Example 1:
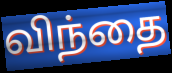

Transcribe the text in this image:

விந்தை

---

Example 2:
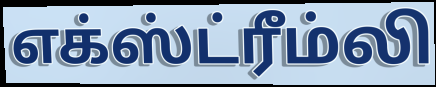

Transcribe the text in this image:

எக்ஸ்ட்ரீம்லி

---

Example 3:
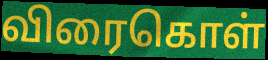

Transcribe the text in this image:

விரைகொள்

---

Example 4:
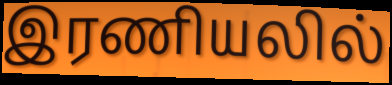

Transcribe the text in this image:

இரணியலில்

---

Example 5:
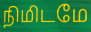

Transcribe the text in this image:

நிமிடமே